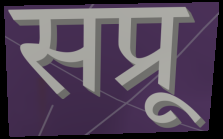
सप्रू